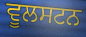
ਵੂਲਸਟਨ